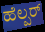
ಹೆಲ್ಪರ್